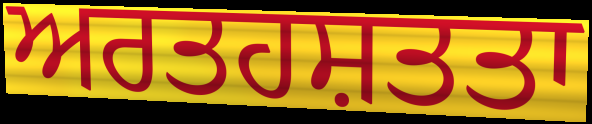
ਅਰਤਹਸ਼ਤਤਾ